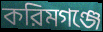
করিমগঞ্জে